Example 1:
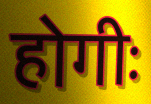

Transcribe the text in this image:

होगीः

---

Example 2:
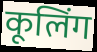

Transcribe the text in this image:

कूलिंग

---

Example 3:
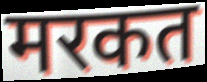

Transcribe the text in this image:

मरकत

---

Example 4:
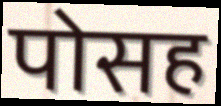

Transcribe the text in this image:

पोसह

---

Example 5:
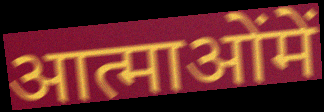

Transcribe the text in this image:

आत्माओंमें